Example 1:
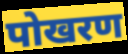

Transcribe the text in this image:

पोखरण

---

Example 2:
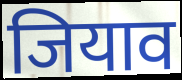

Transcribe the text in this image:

जियाव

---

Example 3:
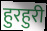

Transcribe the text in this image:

हुरहुरी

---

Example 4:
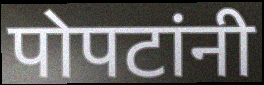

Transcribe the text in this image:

पोपटांनी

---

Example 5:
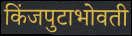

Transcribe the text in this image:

किंजपुटाभोवती